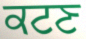
ਕਟਣ